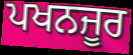
ਪਖਨਜੂਰ